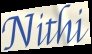
Nithi